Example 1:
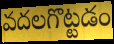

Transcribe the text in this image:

వదలగొట్టడం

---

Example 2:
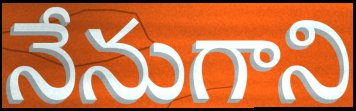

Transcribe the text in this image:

నేనుగాని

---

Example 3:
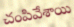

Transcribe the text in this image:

చంపివేశాయి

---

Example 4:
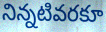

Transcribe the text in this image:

నిన్నటివరకూ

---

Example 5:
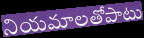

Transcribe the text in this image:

నియమాలతోపాటు